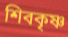
শিবকৃষ্ণ